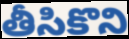
తీసికొని